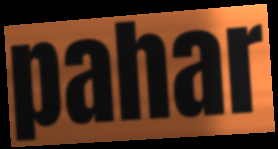
pahar